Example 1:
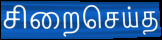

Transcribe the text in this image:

சிறைசெய்த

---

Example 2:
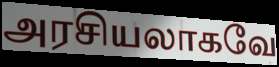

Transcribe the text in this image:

அரசியலாகவே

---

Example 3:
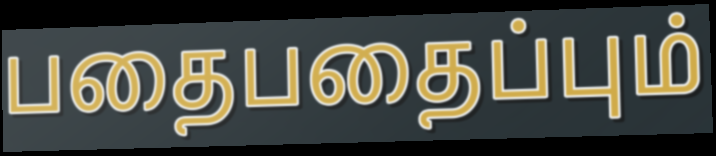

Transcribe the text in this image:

பதைபதைப்பும்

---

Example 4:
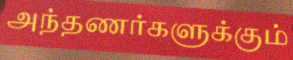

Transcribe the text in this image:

அந்தணர்களுக்கும்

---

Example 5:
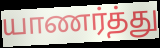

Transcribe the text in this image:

யாணர்த்து